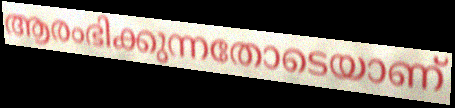
ആരംഭിക്കുന്നതോടെയാണ്